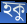
হকু